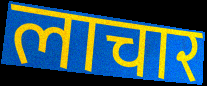
लाचार